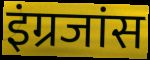
इंग्रजांस